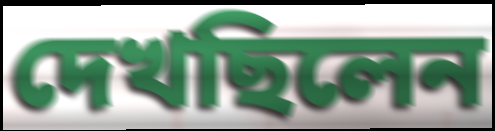
দেখছিলেন